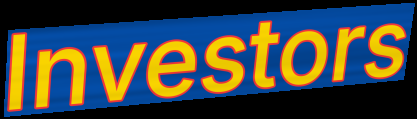
Investors